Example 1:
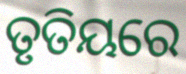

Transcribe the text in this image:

ତୃତିୟରେ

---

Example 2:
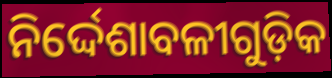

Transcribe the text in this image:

ନିର୍ଦ୍ଦେଶାବଳୀଗୁଡ଼ିକ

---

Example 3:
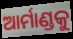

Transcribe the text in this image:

ଆର୍ମାଣ୍ଡକୁ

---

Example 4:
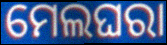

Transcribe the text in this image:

ମେଲଘରା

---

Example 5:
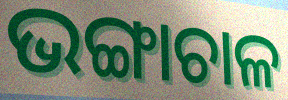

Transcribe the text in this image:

ଭଙ୍ଗାଚାଳ